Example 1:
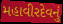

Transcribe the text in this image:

મહાવીરદેવનું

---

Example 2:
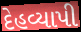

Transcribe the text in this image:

દેહવ્યાપી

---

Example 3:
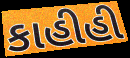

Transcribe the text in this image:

કાહીહી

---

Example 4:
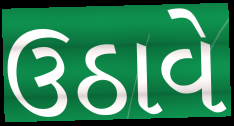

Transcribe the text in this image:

ઉઠાવે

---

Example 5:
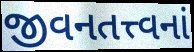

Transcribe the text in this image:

જીવનતત્ત્વનાં